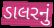
ડાલરનું